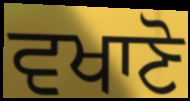
ਵਖਾਣੋ